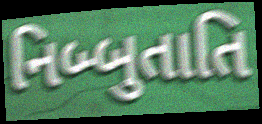
નિબ્બુતાતિ